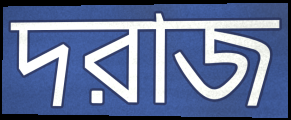
দরাজ